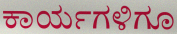
ಕಾರ್ಯಗಳಿಗೂ